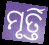
ମୃର୍ତ୍ତି